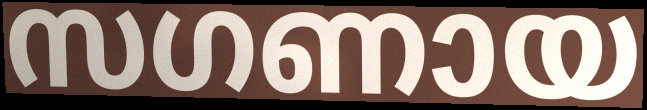
സഗണായ